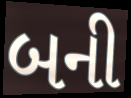
બની